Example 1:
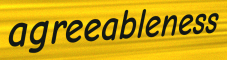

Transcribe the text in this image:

agreeableness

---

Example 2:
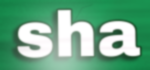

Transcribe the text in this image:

sha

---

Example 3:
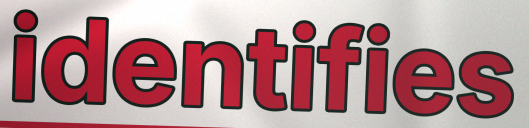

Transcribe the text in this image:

identifies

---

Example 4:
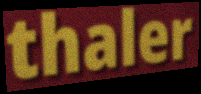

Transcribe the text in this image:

thaler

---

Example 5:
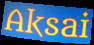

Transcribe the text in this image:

Aksai